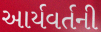
આર્યવર્તની